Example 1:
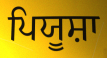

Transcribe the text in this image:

ਪਿਯੂਸ਼ਾ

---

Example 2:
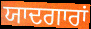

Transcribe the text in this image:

ਯਾਦਗਾਰਾਂ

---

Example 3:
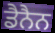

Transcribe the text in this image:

ਡੈਨੈਨ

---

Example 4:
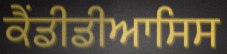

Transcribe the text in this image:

ਕੈਂਡੀਡੀਆਸਿਸ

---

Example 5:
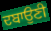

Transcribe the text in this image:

ਦਬਾਉਣੀ